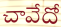
చావేదో